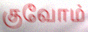
குவோம்